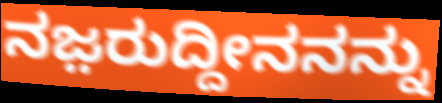
ನಜ಼ರುದ್ದೀನನನ್ನು